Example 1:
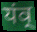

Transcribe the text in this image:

यंव्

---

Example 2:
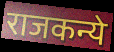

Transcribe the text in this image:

राजकन्ये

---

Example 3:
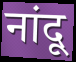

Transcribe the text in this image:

नांदू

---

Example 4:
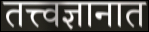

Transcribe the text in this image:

तत्त्वज्ञानात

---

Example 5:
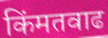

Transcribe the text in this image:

किंमतवाढ